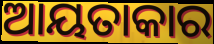
ଆୟତାକାର